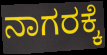
ನಾಗರಕ್ಕೆ